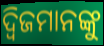
ଦ୍ୱିଜମାନଙ୍କୁ